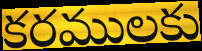
కరములకు